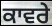
ਕਾਵਰੇ